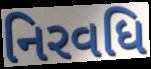
નિરવધિ